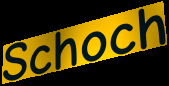
Schoch